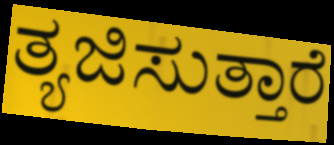
ತ್ಯಜಿಸುತ್ತಾರೆ